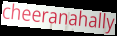
cheeranahally